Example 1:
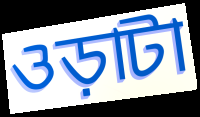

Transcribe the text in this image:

ওড়াটা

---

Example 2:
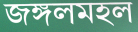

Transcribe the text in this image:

জঙ্গলমহল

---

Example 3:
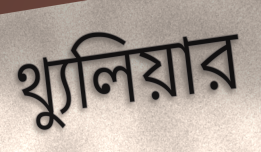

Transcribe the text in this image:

থ্যুলিয়ার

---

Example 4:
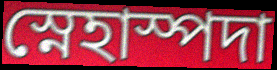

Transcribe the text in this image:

স্নেহাস্পদা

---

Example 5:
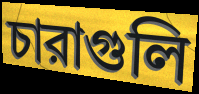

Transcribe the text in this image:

চারাগুলি